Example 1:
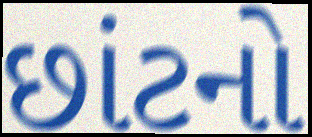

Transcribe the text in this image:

છાંટનો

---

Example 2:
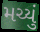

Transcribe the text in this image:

મચ્યું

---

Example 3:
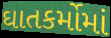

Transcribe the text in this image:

ઘાતકર્મોમાં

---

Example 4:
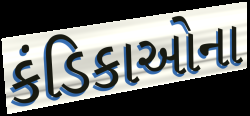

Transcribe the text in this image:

કંડિકાઓના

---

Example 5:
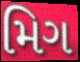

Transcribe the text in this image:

મિગ